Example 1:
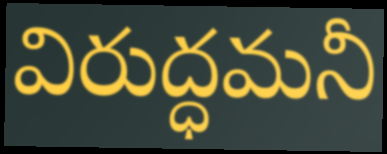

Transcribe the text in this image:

విరుద్ధమనీ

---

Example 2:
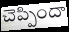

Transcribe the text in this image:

చెప్పిందా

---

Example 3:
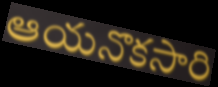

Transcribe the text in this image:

ఆయనొకసారి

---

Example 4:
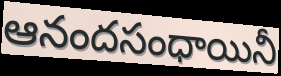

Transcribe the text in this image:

ఆనందసంధాయినీ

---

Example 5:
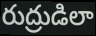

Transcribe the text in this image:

రుద్రుడిలా